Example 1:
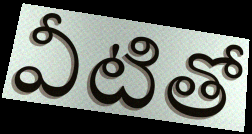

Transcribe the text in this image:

వీటితో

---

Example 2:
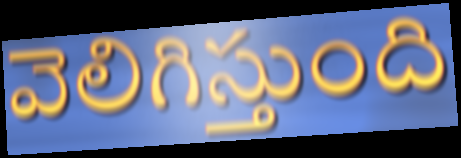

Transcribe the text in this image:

వెలిగిస్తుంది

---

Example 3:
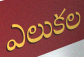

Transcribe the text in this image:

ఎలుకల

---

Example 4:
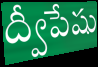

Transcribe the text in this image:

ద్వీపేషు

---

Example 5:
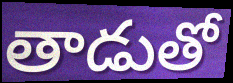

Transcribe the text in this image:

తాడుతో